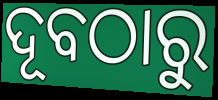
ଦୂବଠାରୁ